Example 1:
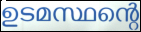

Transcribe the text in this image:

ഉടമസ്ഥന്റെ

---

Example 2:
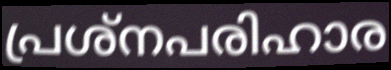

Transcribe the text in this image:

പ്രശ്നപരിഹാര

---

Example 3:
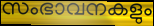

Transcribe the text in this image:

സംഭാവനകളും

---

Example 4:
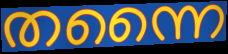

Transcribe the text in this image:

തന്നൈ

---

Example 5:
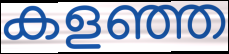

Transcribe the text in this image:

കളഞ്ഞ